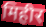
मिहीर